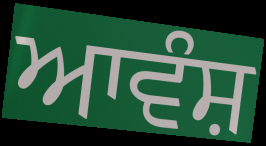
ਆਵੰਸ਼